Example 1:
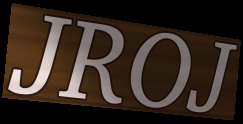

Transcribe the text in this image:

JROJ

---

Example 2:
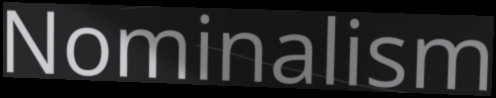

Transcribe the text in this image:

Nominalism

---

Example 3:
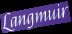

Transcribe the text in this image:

Langmuir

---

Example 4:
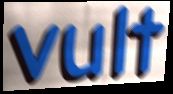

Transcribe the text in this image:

vult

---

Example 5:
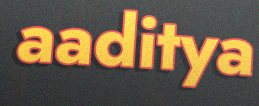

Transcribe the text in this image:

aaditya